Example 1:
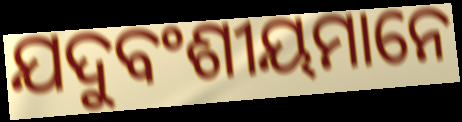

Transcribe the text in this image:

ଯଦୁବଂଶୀୟମାନେ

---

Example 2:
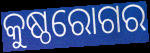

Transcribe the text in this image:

କୁଷ୍ଠରୋଗର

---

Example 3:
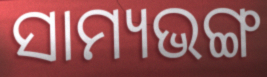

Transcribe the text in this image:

ସାମ୍ଯଭଙ୍ଗ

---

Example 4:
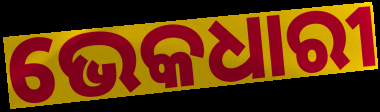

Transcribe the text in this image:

ଭେକଧାରୀ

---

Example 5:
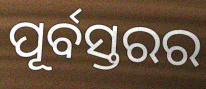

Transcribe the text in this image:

ପୂର୍ବସ୍ତରର